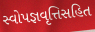
સ્વોપજ્ઞવૃત્તિસહિત